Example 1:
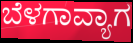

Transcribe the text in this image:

ಬೆಳಗಾವ್ಯಾಗ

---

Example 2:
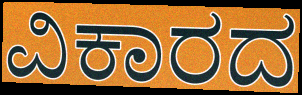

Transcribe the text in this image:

ವಿಕಾರದ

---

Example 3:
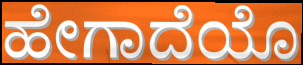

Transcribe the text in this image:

ಹೇಗಾದೆಯೊ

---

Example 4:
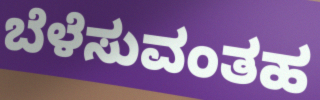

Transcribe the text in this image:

ಬೆಳೆಸುವಂತಹ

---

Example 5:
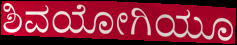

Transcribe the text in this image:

ಶಿವಯೋಗಿಯೂ